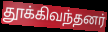
தூக்கிவந்தனர்